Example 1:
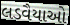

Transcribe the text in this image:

લડવૈયાઓ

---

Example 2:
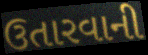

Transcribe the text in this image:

ઉતારવાની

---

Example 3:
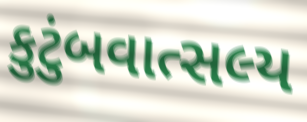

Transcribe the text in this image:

કુટુંબવાત્સલ્ય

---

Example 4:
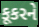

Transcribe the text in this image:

કૂકરને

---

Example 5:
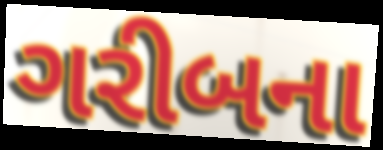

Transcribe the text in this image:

ગરીબના